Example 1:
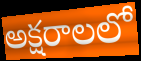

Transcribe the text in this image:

అక్షరాలలో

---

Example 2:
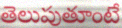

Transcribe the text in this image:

తెలుపుతూంటే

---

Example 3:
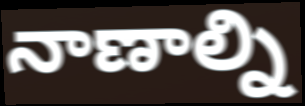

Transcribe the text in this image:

నాణాల్ని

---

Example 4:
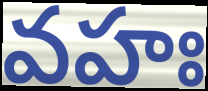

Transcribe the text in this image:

వహః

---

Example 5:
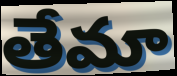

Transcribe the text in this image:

తేమా